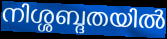
നിശ്ശബ്ദതയിൽ